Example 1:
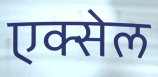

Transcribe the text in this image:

एक्सेल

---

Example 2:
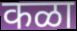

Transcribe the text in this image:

कळा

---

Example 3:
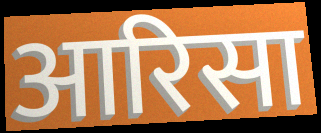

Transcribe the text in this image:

आरिसा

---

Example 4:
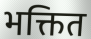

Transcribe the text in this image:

भक्तित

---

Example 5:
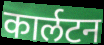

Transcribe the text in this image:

कार्लटन